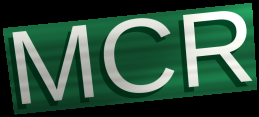
MCR